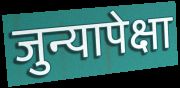
जुन्यापेक्षा